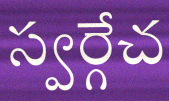
స్వర్గేచ